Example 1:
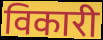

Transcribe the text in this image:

विकारी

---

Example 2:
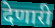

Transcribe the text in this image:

देणारी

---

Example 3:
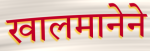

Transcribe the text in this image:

खालमानेने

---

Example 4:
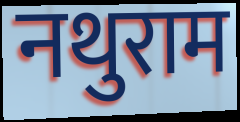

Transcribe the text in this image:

नथुराम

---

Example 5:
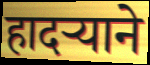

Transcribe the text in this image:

हादऱ्याने